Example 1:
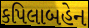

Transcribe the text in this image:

કપિલાબહેન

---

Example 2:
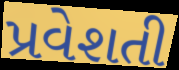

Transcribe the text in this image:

પ્રવેશતી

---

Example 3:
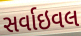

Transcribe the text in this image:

સર્વાઇવલ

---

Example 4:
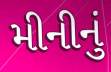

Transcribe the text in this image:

મીનીનું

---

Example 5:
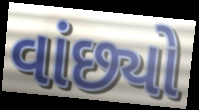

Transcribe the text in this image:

વાંછ્યો